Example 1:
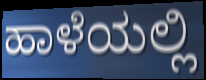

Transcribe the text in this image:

ಹಾಳೆಯಲ್ಲಿ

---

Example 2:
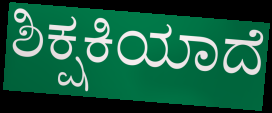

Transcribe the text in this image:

ಶಿಕ್ಷಕಿಯಾದೆ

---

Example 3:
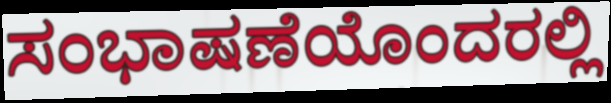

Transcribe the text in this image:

ಸಂಭಾಷಣೆಯೊಂದರಲ್ಲಿ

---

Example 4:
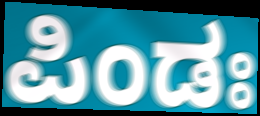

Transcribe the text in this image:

ಪಿಂಡಃ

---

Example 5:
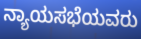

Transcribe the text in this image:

ನ್ಯಾಯಸಭೆಯವರು